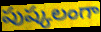
పుష్కలంగా